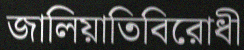
জালিয়াতিবিরোধী